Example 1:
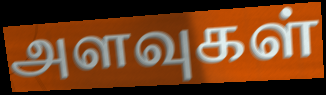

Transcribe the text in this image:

அளவுகள்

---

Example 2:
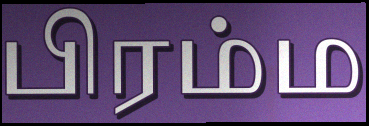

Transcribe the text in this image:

பிரம்ம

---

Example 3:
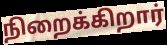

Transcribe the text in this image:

நிறைக்கிறார்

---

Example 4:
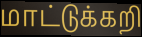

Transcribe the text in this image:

மாட்டுக்கறி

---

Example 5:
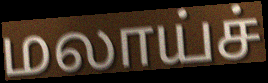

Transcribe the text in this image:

மலாய்ச்